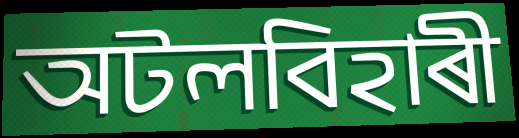
অটলবিহাৰী